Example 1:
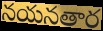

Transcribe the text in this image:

నయనతార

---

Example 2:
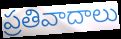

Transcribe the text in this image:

ప్రతివాదాలు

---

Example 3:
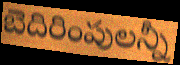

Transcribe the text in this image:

బెదిరింపులన్నీ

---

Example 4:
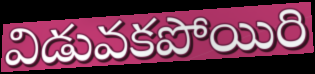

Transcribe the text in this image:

విడువకపోయిరి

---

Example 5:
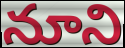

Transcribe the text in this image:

నూని